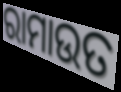
ରାମାଉତ